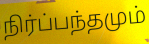
நிர்ப்பந்தமும்